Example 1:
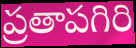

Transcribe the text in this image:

ప్రతాపగిరి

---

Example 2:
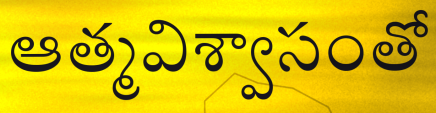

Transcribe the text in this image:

ఆత్మవిశ్వాసంతో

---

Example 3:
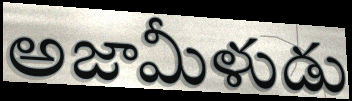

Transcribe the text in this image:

అజామీళుడు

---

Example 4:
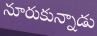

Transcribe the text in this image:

నూరుకున్నాడు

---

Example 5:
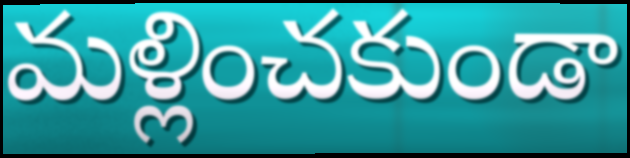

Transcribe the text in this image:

మళ్లించకుండా